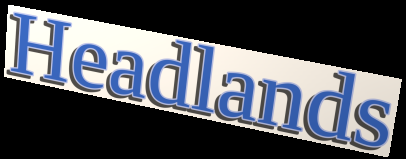
Headlands